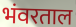
भंवरताल